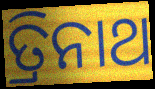
ତ୍ରିନାଥ